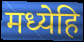
मध्येहि